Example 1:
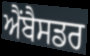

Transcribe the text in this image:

ਐਂਬੈਸਡਰ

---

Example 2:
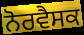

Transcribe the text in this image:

ਨੋਰਵੈਸਕ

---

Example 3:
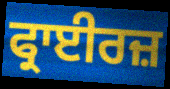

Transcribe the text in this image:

ਫ੍ਰਾਈਰਜ਼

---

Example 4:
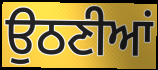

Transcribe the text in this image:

ਉਠਣੀਆਂ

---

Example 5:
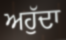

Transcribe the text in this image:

ਅਹੁੱਦਾ